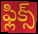
ఫ్లిక్స్